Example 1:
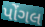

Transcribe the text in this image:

પોંગલ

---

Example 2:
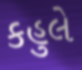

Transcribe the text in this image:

કહુલે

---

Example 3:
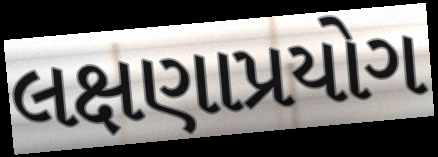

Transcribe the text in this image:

લક્ષણાપ્રયોગ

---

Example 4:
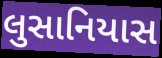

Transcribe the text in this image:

લુસાનિયાસ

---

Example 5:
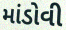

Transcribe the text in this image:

માંડોવી